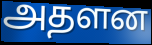
அதளன